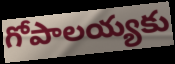
గోపాలయ్యకు